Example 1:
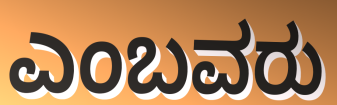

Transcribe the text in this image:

ಎಂಬವರು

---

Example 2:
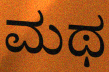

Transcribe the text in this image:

ಮಥ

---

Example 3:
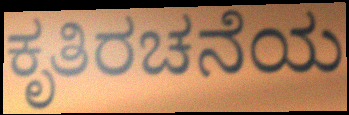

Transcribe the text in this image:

ಕೃತಿರಚನೆಯ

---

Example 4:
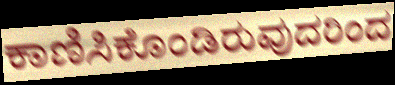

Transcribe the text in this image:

ಕಾಣಿಸಿಕೊಂಡಿರುವುದರಿಂದ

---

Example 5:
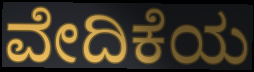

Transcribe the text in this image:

ವೇದಿಕೆಯ